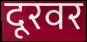
दूरवर